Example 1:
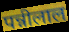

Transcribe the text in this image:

पन्नीलाल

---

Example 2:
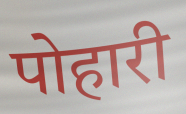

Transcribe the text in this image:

पोहारी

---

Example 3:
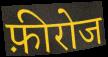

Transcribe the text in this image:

फ़ीरोज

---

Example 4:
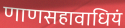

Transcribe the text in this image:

णाणसहावाधियं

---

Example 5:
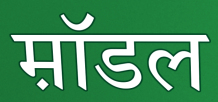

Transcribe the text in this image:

म़ॉडल